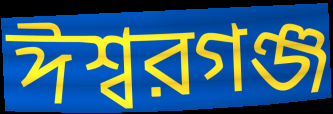
ঈশ্বরগঞ্জ